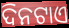
ଦିନଟାଏ